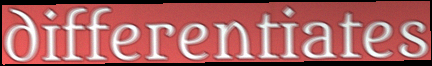
differentiates